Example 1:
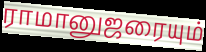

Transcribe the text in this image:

ராமானுஜரையும்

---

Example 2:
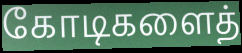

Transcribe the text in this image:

கோடிகளைத்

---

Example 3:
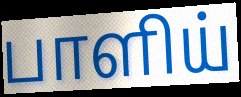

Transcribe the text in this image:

பாளிய்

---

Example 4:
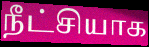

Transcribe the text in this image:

நீட்சியாக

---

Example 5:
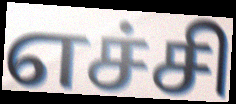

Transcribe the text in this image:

எச்சி